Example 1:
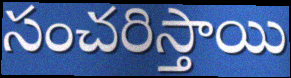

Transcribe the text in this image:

సంచరిస్తాయి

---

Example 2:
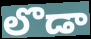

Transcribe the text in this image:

లొడా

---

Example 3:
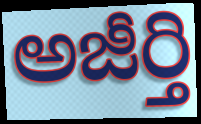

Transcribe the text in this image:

అజీర్తి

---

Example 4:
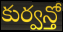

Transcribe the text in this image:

కుర్వన్తో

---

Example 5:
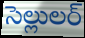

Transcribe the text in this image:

సెల్లులర్